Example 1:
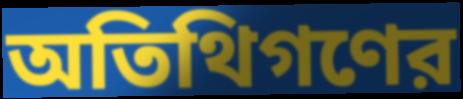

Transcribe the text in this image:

অতিথিগণের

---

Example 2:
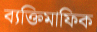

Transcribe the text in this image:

ব্যক্তিমাফিক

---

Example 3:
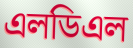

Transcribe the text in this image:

এলডিএল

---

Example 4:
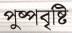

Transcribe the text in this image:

পুষ্পবৃষ্টি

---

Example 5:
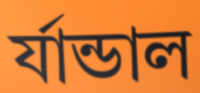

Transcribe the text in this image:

র্যান্ডাল